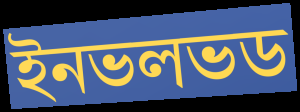
ইনভলভড